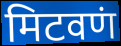
मिटवणं